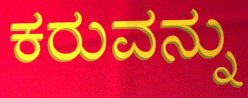
ಕರುವನ್ನು